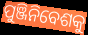
ପୁଞ୍ଜିନିବେଶକୁ